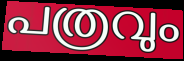
പത്രവും